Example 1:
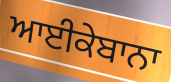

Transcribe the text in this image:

ਆਈਕੇਬਾਨਾ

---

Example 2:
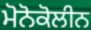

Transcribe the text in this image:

ਮੋਨੋਕੋਲੀਨ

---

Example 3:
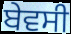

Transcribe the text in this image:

ਬੇਵਸੀ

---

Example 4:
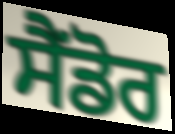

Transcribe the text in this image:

ਸੈਂਡੋਰ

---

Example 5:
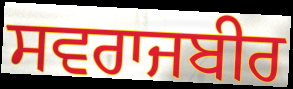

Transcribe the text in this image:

ਸਵਰਾਜਬੀਰ